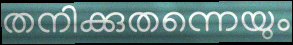
തനിക്കുതന്നെയും